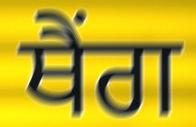
ਥੈਂਗ